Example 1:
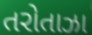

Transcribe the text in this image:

તરોતાઝા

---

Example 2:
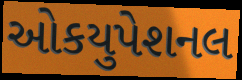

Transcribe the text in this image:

ઓકયુપેશનલ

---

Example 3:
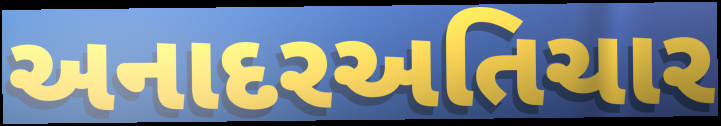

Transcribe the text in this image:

અનાદરઅતિચાર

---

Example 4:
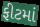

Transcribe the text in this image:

ફીટમાં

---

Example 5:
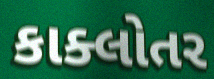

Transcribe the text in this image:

કાક્લોતર